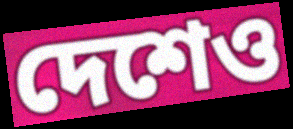
দেশেও